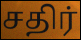
சதிர்